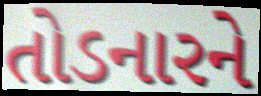
તોડનારને